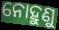
ନୋହୁଣୁ